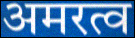
अमरत्व